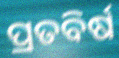
ପ୍ରତବିର୍ଷ